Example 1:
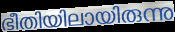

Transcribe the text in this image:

ഭീതിയിലായിരുന്നു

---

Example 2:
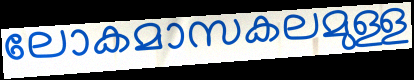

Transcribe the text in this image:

ലോകമാസകലമുള്ള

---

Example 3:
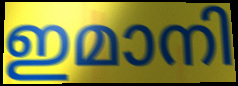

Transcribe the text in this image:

ഇമാനി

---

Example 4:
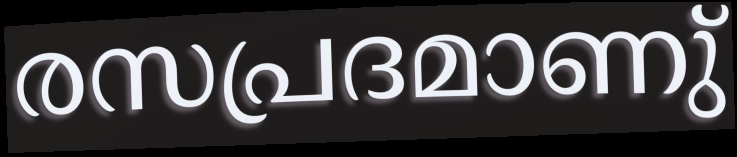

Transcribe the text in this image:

രസപ്രദമാണു്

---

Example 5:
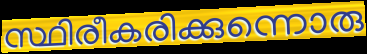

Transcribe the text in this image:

സ്ഥിരീകരിക്കുന്നൊരു